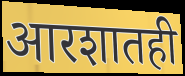
आरशातही